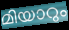
മിയാറും